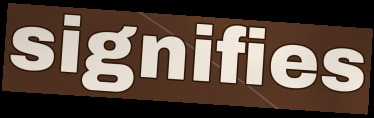
signifies